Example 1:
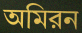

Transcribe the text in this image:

অমিরন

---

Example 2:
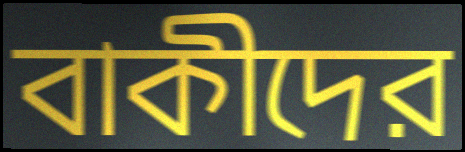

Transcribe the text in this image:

বাকীদের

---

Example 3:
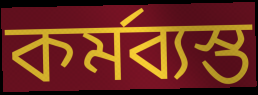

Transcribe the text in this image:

কর্মব্যস্ত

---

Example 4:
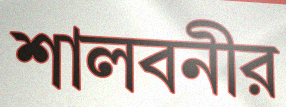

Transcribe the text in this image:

শালবনীর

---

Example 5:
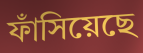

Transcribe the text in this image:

ফাঁসিয়েছে